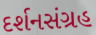
દર્શનસંગ્રહ